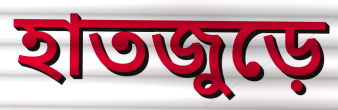
হাতজুড়ে